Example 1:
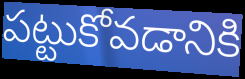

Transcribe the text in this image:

పట్టుకోవడానికి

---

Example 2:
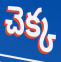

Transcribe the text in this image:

చెక్క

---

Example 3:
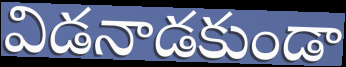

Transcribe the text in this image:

విడనాడకుండా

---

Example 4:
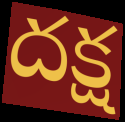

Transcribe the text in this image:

దక్ష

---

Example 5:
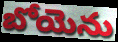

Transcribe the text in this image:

బోయెను